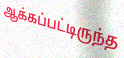
ஆக்கப்பட்டிருந்த